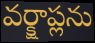
వర్క్షాప్లను